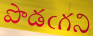
పొడఁగని